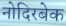
नोदिरबेक